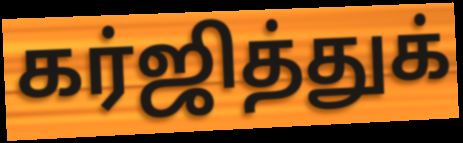
கர்ஜித்துக்